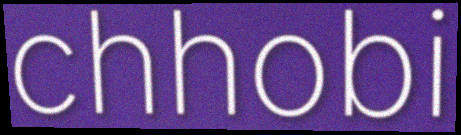
chhobi